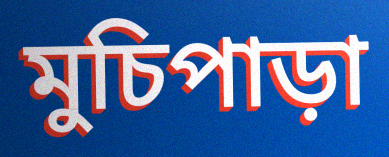
মুচিপাড়া